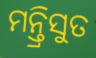
ମନ୍ତ୍ରିସୁତ